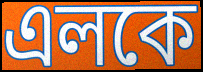
এলকে